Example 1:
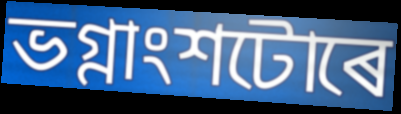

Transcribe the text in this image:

ভগ্নাংশটোৰে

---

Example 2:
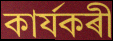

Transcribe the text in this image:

কাৰ্যকৰী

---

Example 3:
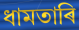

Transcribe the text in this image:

ধামতাৰি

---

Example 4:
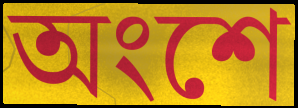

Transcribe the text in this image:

অংশে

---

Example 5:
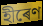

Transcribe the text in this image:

হীৰেণ